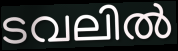
ടവലിൽ